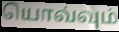
யொவ்வும்